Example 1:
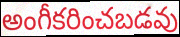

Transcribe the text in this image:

అంగీకరించబడవు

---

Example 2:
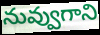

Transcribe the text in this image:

నువ్వుగాని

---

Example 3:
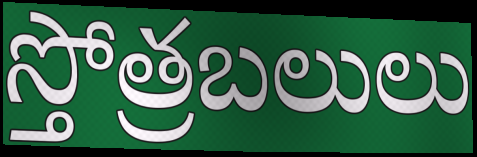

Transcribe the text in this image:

స్తోత్రబలులు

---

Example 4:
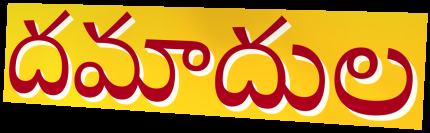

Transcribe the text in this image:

దమాదుల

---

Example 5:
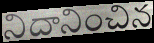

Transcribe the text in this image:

నిదానించిన